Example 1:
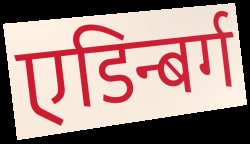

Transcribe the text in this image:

एडिन्बर्ग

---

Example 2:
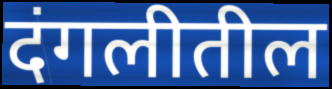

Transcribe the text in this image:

दंगलीतील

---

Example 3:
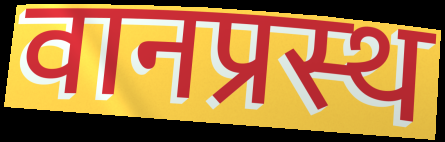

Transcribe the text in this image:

वानप्रस्थ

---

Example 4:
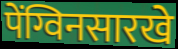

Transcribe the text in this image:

पेंग्विनसारखे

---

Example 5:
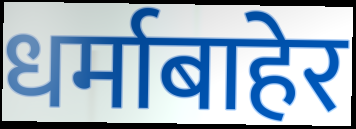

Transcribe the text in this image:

धर्माबाहेर